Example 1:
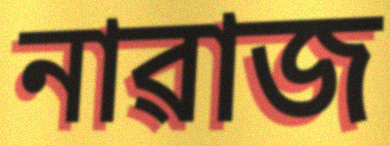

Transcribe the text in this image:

নাৱাজ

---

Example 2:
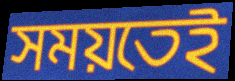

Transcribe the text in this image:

সময়তেই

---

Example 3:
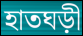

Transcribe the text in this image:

হাতঘড়ী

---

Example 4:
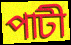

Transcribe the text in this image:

পাটী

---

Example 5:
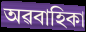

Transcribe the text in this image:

অৱবাহিকা